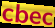
cbec